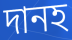
দানহ